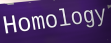
Homology